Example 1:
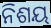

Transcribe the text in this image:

ନିଶୟ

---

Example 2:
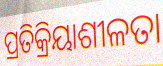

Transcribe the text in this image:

ପ୍ରତିକ୍ରିୟାଶୀଳତା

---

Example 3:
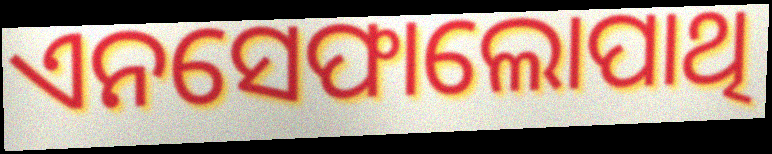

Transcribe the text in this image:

ଏନସେଫାଲୋପାଥି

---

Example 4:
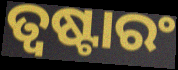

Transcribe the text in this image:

ତ୍ୱଷ୍ଟାରଂ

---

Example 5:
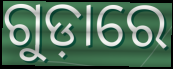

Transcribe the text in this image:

ଗୁଡ଼ାରେ